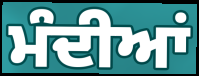
ਮੰਦੀਆਂ